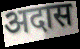
अदास